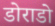
डोराडो